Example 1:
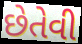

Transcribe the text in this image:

છેતેવી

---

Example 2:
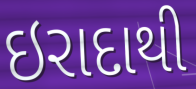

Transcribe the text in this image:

ઇરાદાથી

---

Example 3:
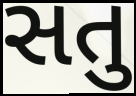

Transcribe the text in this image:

સતુ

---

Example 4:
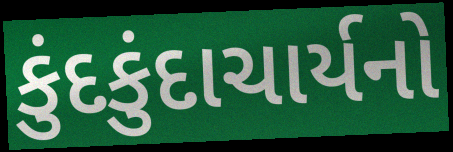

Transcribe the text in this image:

કુંદકુંદાચાર્યનો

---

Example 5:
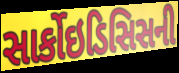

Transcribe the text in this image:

સાર્કોઇડિસિસની